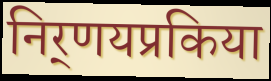
निर्णयप्रकिया